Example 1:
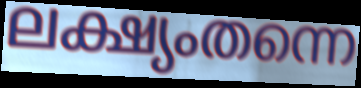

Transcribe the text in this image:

ലക്ഷ്യംതന്നെ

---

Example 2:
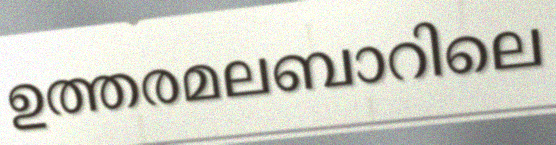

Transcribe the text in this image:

ഉത്തരമലബാറിലെ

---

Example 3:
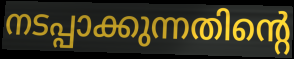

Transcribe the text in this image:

നടപ്പാക്കുന്നതിന്റെ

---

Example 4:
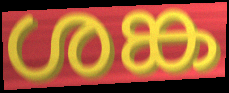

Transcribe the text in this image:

ശങ്ക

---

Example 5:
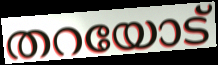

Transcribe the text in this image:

തറയോട്